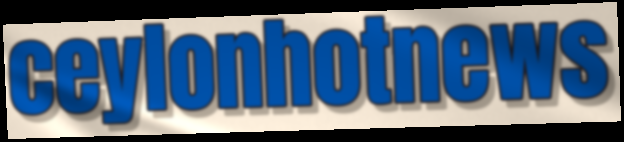
ceylonhotnews